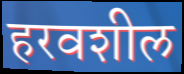
हरवशील